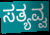
ಸತ್ಯವ್ವ